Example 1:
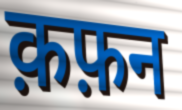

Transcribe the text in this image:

क़फ़न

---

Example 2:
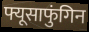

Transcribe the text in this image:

फ्यूसाफुंगिन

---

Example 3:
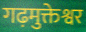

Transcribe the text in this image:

गढ़मुक्तेश्वर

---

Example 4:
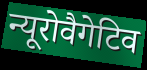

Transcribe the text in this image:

न्यूरोवैगेटिव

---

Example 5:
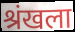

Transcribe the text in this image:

श्रंखला